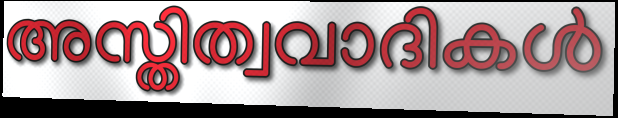
അസ്തിത്വവാദികൾ